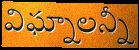
విఘ్నాలన్నీ